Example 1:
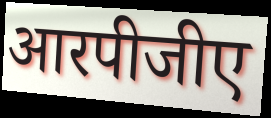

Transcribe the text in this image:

आरपीजीए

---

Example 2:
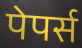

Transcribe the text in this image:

पेपर्स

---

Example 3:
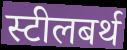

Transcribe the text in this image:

स्टीलबर्थ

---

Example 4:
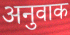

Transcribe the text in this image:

अनुवाक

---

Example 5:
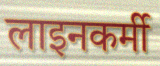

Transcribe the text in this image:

लाइनकर्मी